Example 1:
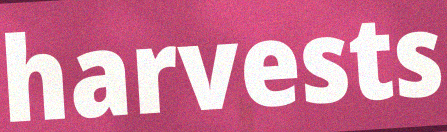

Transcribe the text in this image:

harvests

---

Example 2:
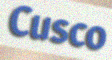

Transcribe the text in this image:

Cusco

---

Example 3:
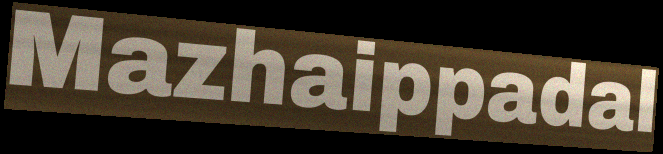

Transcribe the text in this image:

Mazhaippadal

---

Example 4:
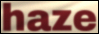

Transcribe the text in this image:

haze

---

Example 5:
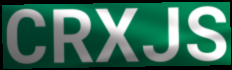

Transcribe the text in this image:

CRXJS